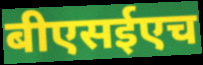
बीएसईएच